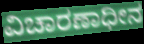
ವಿಚಾರಣಾಧೀನ